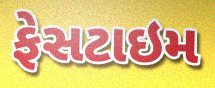
ફેસટાઇમ